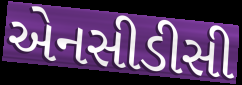
એનસીડીસી